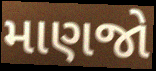
માણજો